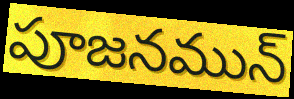
పూజనమున్